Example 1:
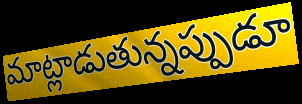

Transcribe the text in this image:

మాట్లాడుతున్నప్పుడూ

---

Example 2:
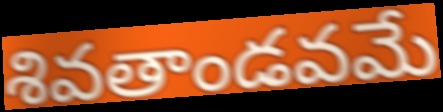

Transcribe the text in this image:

శివతాండవమే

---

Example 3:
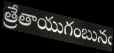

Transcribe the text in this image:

త్రేతాయుగంబునఁ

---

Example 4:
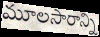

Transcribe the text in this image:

మూలసారాన్ని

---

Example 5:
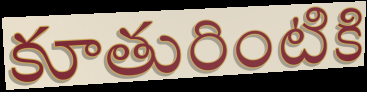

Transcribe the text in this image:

కూతురింటికి